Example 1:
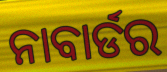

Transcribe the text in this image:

ନାବାର୍ଡର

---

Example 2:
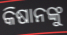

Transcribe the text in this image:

କିଷାନଙ୍କୁ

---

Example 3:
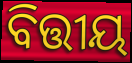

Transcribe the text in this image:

ବିତ୍ତୀୟ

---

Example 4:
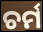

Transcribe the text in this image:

ଚର୍ମ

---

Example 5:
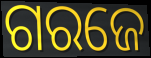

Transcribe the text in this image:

ଗରଜେ